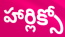
హార్లిక్సో